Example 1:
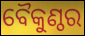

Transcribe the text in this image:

ବୈକୁଣ୍ଠର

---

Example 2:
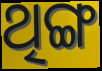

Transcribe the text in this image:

ଥିଙ୍ଗ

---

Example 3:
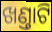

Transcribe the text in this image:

ଖଣ୍ତାଟି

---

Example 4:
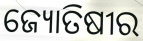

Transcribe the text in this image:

ଜ୍ୟୋତିଷୀର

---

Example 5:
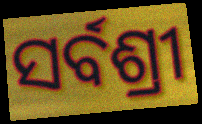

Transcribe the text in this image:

ସର୍ବଶ୍ରୀ